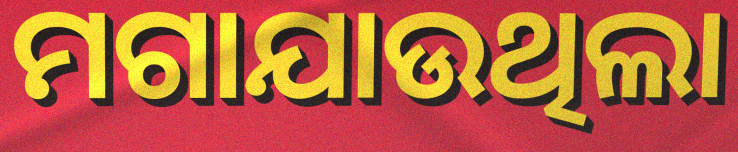
ମଗାଯାଉଥିଲା